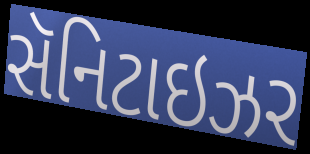
સૅનિટાઇઝર